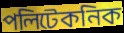
পলিটেকনিক